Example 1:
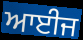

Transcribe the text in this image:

ਆਈਜ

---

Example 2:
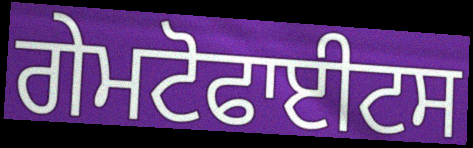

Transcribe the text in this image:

ਗੇਮਟੋਫਾਈਟਸ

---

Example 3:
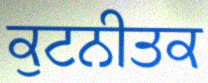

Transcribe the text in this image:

ਕੁਟਨੀਤਕ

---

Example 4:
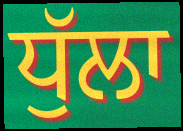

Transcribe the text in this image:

ਧੁੱਲਾ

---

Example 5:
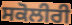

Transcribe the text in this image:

ਸਕੋਲੀਰੀ